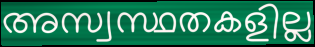
അസ്വസ്ഥതകളില്ല